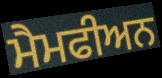
ਮੈਮਫੀਅਨ